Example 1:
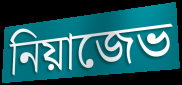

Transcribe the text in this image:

নিয়াজেভ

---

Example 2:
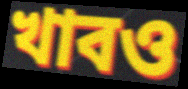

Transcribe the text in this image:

খাবও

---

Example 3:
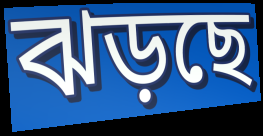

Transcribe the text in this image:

ঝড়ছে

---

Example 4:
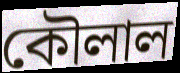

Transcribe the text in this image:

কৌলাল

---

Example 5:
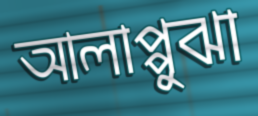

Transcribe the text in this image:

আলাপ্পুঝা